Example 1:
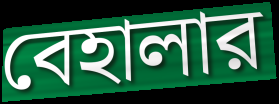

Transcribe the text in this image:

বেহালার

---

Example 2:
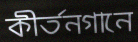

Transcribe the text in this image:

কীর্তনগানে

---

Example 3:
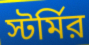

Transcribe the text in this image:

স্টর্মির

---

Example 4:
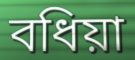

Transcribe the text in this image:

বধিয়া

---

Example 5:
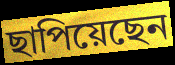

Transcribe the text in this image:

ছাপিয়েছেন